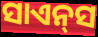
ସାଏନ୍‌ସ